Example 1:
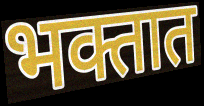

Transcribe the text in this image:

भक्तात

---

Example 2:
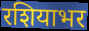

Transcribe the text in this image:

रशियाभर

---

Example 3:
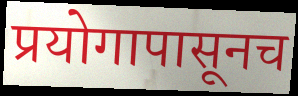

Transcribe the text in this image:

प्रयोगापासूनच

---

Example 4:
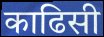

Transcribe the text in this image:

काढिसी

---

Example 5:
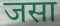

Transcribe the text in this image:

जसा